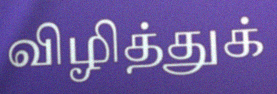
விழித்துக்